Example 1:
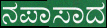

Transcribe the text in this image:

ನಪಾಸಾದ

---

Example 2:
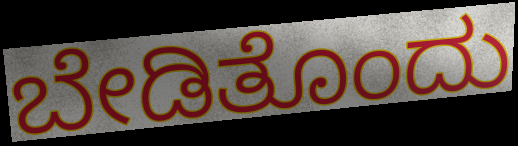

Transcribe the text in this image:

ಬೇಡಿತೊಂದು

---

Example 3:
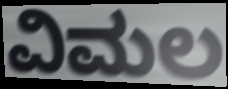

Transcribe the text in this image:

ವಿಮಲ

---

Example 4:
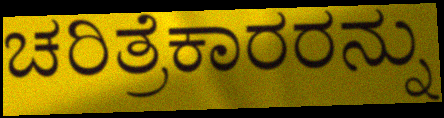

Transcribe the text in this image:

ಚರಿತ್ರೆಕಾರರನ್ನು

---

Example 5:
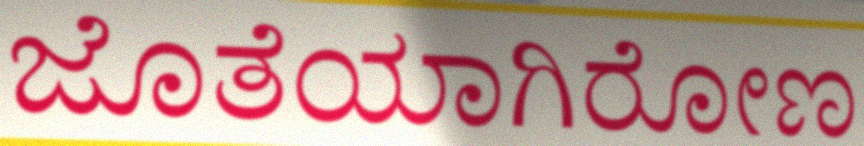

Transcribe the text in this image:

ಜೊತೆಯಾಗಿರೋಣ